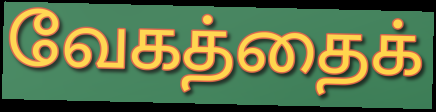
வேகத்தைக்